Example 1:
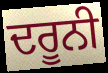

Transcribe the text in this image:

ਦਰੂਨੀ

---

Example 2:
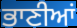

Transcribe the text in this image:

ਭਾਣੀਆਂ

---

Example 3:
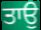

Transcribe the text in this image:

ਤਾਉ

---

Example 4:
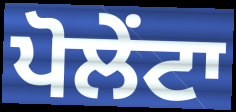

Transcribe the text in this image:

ਪੋਲੇਂਟਾ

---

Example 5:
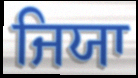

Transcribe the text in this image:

ਜਿਯਾ